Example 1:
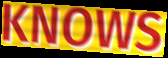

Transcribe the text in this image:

KNOWS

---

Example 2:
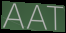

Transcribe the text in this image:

AAT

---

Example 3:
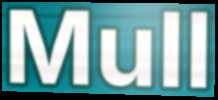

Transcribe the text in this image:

Mull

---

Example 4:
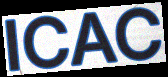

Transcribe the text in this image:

ICAC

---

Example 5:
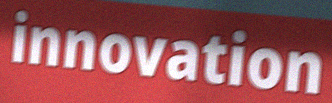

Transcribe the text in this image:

innovation